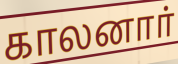
காலனார்